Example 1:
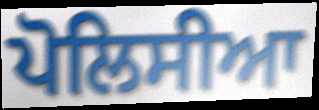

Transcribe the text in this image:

ਪੋਲਿਸੀਆ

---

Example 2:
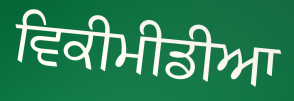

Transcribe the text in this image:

ਵਿਕੀਮੀਡੀਆ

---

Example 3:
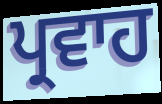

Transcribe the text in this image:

ਪ੍ਰਵਾਹ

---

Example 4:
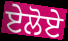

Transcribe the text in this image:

ਏਲੋਏ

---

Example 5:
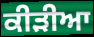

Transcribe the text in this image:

ਕੀੜੀਆ